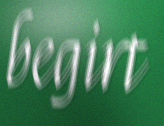
begirt